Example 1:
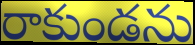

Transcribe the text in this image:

రాకుండను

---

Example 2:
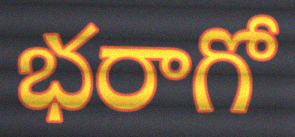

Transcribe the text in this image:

భరాగో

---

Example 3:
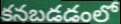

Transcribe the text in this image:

కనబడడంలో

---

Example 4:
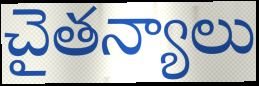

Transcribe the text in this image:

చైతన్యాలు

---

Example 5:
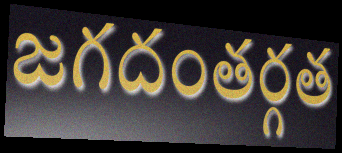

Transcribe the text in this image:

జగదంతర్గత